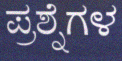
ಪ್ರಶ್ನೆಗಳ